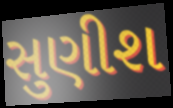
સુણીશ